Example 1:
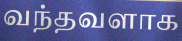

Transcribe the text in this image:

வந்தவளாக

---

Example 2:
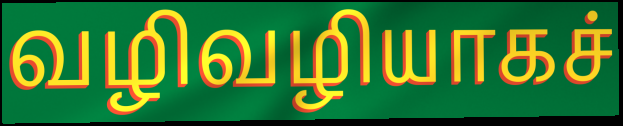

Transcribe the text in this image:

வழிவழியாகச்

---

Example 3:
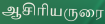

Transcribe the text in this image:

ஆசிரியருரை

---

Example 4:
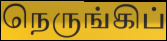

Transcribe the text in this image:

நெருங்கிப்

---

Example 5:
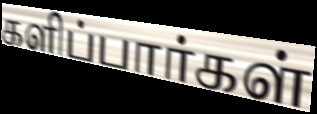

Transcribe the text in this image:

களிப்பார்கள்